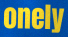
onely